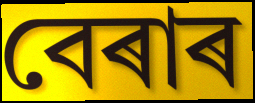
বেৰাৰ